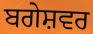
ਬਗੇਸ਼ਵਰ